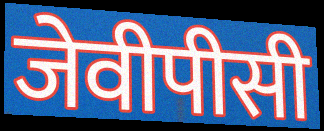
जेवीपीसी